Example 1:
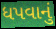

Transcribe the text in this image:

ધપવાનું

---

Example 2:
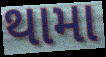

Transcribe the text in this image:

થામા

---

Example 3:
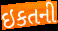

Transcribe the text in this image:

ઇકતની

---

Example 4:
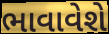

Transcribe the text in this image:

ભાવાવેશે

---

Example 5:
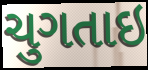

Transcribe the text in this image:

ચુગતાઇ